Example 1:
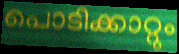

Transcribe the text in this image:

പൊടിക്കാറ്റും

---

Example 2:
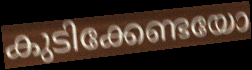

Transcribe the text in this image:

കുടിക്കേണ്ടയോ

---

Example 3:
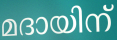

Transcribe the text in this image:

മദായിന്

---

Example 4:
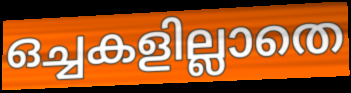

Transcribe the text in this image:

ഒച്ചകളില്ലാതെ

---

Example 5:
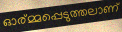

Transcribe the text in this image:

ഓര്മ്മപ്പെടുത്തലാണ്